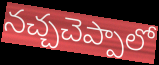
నచ్చచెప్పాలో